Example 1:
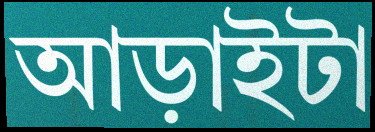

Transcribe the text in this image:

আড়াইটা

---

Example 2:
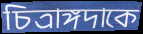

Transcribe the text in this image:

চিত্রাঙ্গদাকে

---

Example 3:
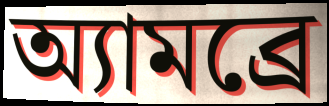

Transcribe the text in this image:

অ্যামব্রে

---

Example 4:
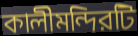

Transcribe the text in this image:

কালীমন্দিরটি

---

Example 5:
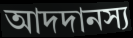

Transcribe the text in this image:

আদদানস্য